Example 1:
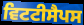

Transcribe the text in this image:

ਵਿਟਟੀਸੈਪਸ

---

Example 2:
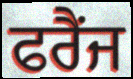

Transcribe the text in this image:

ਫਰੈਂਜ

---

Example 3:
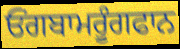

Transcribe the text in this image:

ਓਂਗਬਾਮਰੂੰਗਫਾਨ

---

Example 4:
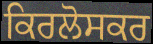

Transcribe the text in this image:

ਕਿਰਲੋਸਕਰ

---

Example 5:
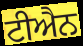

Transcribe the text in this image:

ਟੀਐਨ